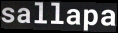
sallapa